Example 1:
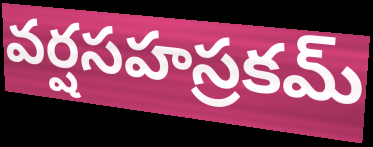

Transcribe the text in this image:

వర్షసహస్రకమ్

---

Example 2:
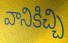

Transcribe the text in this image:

వానికిచ్చి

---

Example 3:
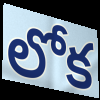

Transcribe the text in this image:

లోక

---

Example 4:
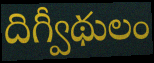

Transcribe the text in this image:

దిగ్వీథులం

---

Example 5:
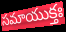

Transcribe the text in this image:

సమాయుక్తః